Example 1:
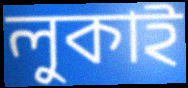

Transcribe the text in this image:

লুকাই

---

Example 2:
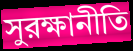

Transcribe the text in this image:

সুরক্ষানীতি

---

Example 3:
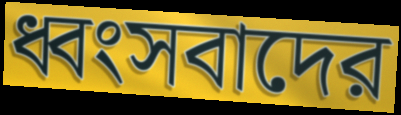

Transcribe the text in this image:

ধ্বংসবাদের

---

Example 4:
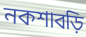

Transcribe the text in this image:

নকশাবড়ি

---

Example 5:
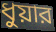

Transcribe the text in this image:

ধুয়ার